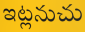
ఇట్లనుచు